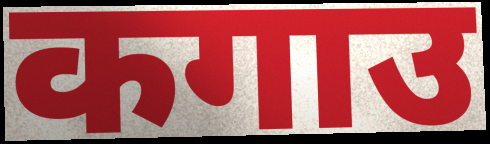
कगाउ